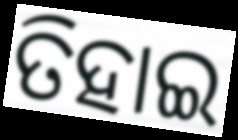
ତିହାଇ